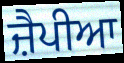
ਜ਼ੈਪੀਆ